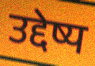
उद्देष्य